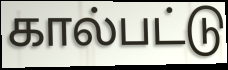
கால்பட்டு